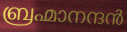
ബ്രഹ്മാനന്ദൻ